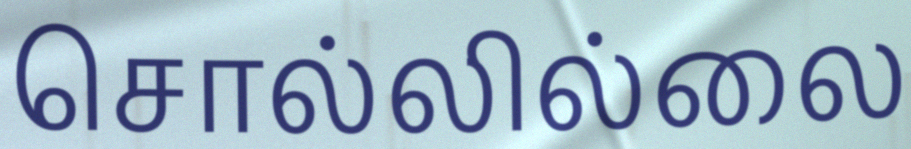
சொல்லில்லை